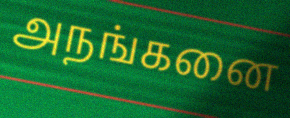
அநங்கனை